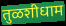
तुळशीधाम